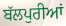
ਬੱਲਪੁਰੀਆਂ